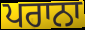
ਪਰਾਨਾ